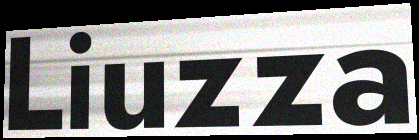
Liuzza